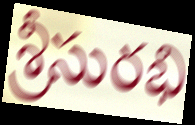
శ్రీసురభి